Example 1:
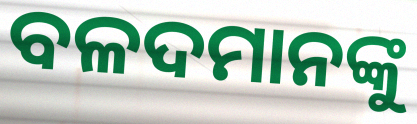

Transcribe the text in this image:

ବଳଦମାନଙ୍କୁ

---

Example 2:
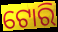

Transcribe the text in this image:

ଟୋରି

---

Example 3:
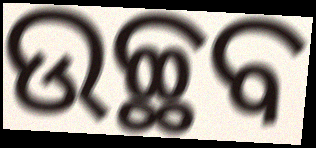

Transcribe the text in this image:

ଉଚ୍ଛବ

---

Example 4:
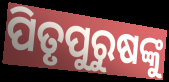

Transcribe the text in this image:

ପିତୃପୁରୁଷଙ୍କୁ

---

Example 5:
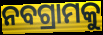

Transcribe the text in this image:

ନବଗ୍ରାମକୁ